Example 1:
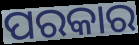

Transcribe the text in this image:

ପରକାର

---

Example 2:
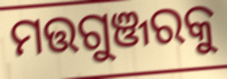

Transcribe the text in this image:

ମତ୍ତଗୁଞ୍ଜରକୁ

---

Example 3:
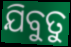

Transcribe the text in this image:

ଯିବୁତୁ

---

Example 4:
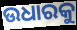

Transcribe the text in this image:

ଉଧାରକୁ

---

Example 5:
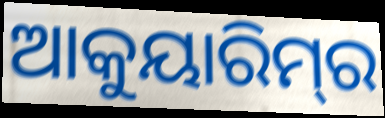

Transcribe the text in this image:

ଆକୁୟାରିମ୍‌ର